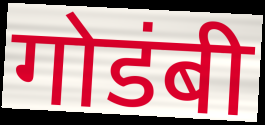
गोडंबी